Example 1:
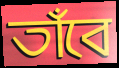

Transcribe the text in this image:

তাঁবে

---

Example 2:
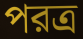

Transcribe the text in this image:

পরত্র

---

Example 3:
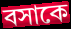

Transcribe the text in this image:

বসাকে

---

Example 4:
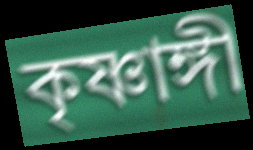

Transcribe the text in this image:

কৃষ্ণাঙ্গী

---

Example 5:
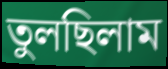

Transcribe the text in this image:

তুলছিলাম